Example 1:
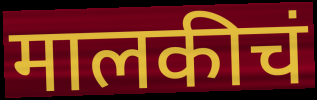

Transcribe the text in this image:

मालकीचं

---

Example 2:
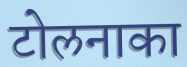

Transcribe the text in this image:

टोलनाका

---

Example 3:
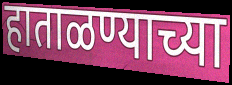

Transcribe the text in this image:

हाताळण्याच्या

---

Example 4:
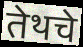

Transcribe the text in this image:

तेथचे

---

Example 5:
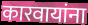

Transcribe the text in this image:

कारवायांना